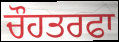
ਚੌਹਤਰਫਾ